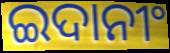
ଇଦାନୀଂ